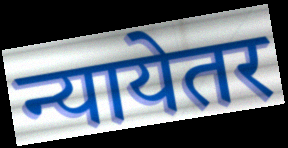
न्यायेतर